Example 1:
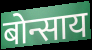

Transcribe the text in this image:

बोन्साय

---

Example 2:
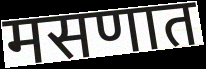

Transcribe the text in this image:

मसणात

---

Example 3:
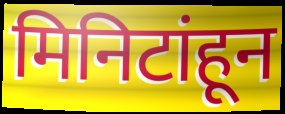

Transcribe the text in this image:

मिनिटांहून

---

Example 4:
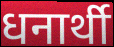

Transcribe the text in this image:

धनार्थी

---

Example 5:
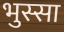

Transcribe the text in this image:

भुस्सा